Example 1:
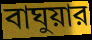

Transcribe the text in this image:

বাঘুয়ার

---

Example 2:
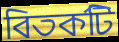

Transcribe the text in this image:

বিতর্কটি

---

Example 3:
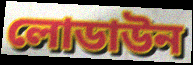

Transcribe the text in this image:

লোডাউন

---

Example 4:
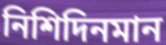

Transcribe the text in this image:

নিশিদিনমান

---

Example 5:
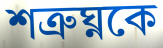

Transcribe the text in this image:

শত্রুঘ্নকে